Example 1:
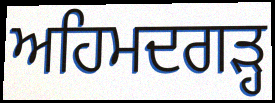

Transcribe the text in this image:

ਅਹਿਮਦਗੜ੍ਹ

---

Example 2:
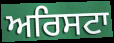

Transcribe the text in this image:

ਅਰਿਸਟਾ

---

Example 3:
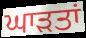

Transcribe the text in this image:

ਘਾਡ਼ਤਾਂ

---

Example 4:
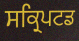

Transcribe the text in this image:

ਸਕ੍ਰਿਪਟਡ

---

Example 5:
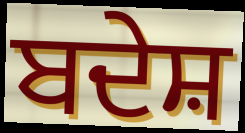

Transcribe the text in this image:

ਬਦੇਸ਼